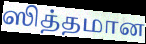
ஸித்தமான